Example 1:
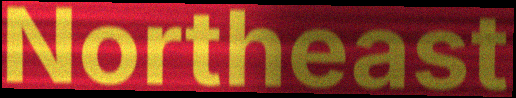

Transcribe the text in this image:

Northeast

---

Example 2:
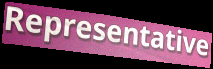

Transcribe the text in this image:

Representative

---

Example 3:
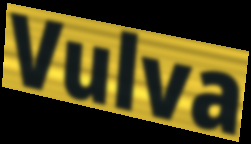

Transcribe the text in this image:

Vulva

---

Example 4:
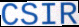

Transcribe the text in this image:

CSIR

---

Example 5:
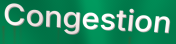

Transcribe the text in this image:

Congestion